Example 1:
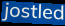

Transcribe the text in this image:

jostled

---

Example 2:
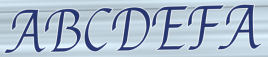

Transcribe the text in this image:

ABCDEFA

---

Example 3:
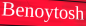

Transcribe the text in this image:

Benoytosh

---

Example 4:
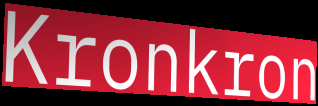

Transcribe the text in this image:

Kronkron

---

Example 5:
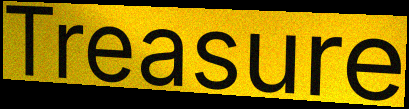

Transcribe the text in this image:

Treasure